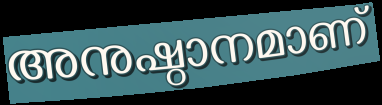
അനുഷ്ഠാനമാണ്